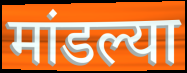
मांडल्या